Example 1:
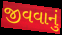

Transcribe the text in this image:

જીવવાનું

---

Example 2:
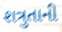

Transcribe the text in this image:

શત્રુતાની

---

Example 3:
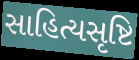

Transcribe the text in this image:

સાહિત્યસૃષ્ટિ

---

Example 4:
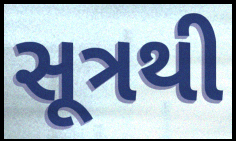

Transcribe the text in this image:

સૂત્રથી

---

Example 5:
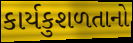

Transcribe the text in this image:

કાર્યકુશળતાનો